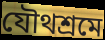
যৌথশ্রমে